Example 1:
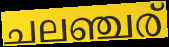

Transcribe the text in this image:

ചലഞ്ചര്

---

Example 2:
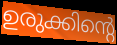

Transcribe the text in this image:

ഉരുക്കിന്റെ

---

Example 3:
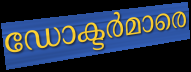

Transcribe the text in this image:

ഡോക്ടർമാരെ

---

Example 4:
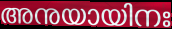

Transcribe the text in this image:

അനുയായിനഃ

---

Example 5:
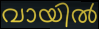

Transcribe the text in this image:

വായിൽ